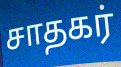
சாதகர்